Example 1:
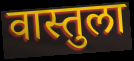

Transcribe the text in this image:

वास्तुला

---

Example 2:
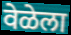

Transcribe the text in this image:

वेळेला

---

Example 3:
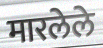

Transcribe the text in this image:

मारलेले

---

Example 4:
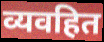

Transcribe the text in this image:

व्यवहित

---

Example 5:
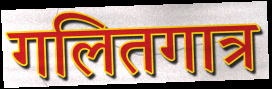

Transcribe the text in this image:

गलितगात्र